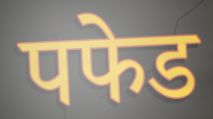
पफेड